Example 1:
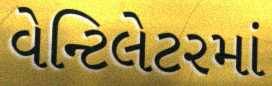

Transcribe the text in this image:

વેન્ટિલેટરમાં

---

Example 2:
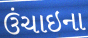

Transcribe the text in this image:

ઉંચાઇના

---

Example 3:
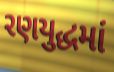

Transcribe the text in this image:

રણયુદ્ધમાં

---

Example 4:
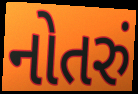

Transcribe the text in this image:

નોતરું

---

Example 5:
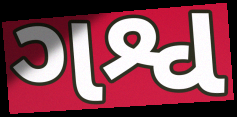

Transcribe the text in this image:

ગશ્વ